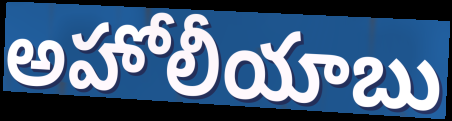
అహోలీయాబు